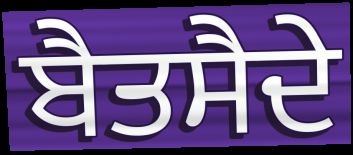
ਬੈਤਸੈਦੇ